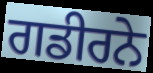
ਗਡੀਰਨੇ